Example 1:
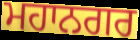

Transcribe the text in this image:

ਮਹਾਨਗਰ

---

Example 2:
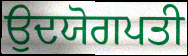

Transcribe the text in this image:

ਉਦਯੋਗਪਤੀ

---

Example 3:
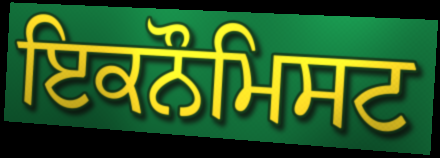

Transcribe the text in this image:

ਇਕਨੌਮਿਸਟ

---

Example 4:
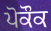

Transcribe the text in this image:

ਪੋਕੌਕ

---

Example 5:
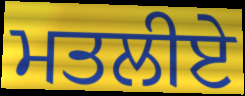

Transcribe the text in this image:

ਮਤਲੀਏ